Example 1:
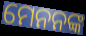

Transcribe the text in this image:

ମେନନଙ୍କ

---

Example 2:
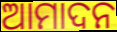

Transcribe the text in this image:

ଆମାଦନ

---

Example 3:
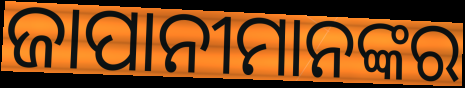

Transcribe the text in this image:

ଜାପାନୀମାନଙ୍କର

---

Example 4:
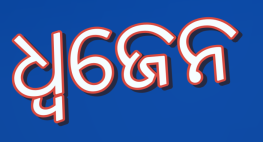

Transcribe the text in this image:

ଧ୍ଵଜେନ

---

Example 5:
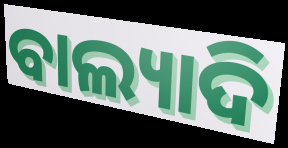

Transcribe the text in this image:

ବାଲ୍ୟାଦି